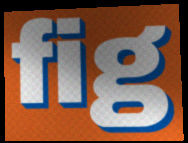
fig